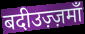
बदीउज़्ज़माँ